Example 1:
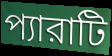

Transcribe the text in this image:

প্যারাটি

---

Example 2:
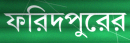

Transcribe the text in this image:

ফরিদপুরের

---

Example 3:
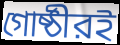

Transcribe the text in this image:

গোষ্ঠীরই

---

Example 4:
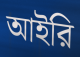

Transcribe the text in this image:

আইরি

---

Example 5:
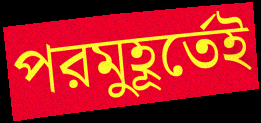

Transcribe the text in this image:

পরমুহূর্তেই